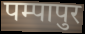
पम्पापुर